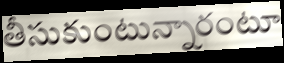
తీసుకుంటున్నారంటూ